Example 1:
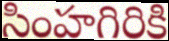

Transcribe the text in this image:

సింహగిరికి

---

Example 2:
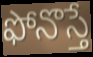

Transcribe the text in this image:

ఫోనొస్తే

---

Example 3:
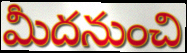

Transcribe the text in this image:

మీదనుంచి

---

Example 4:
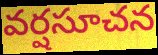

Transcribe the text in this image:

వర్షసూచన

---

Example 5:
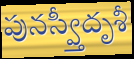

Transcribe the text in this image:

పునస్వ్తీదృశీ